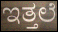
ಇತ್ತಲೆ